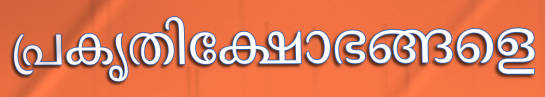
പ്രകൃതിക്ഷോഭങ്ങളെ